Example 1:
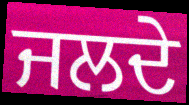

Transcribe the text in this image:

ਜਲਦੇ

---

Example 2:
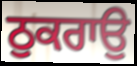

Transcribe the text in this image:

ਠੁਕਰਾਉ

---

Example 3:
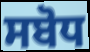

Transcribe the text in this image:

ਸਬੋਧ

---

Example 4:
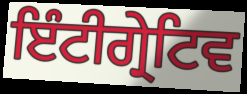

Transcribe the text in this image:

ਇੰਟੀਗ੍ਰੇਟਿਵ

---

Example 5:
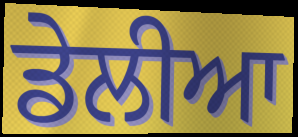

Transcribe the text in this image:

ਡੇਲੀਆ